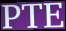
PTE